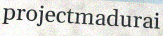
projectmadurai